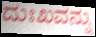
ದುಃಖವನ್ನು